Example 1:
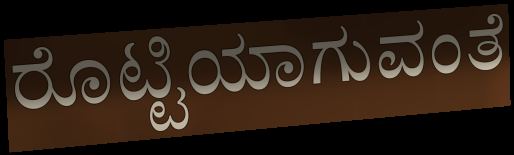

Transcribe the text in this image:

ರೊಟ್ಟಿಯಾಗುವಂತೆ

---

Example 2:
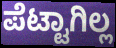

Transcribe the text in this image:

ಪೆಟ್ಟಾಗಿಲ್ಲ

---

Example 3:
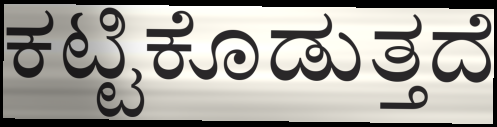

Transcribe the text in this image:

ಕಟ್ಟಿಕೊಡುತ್ತದೆ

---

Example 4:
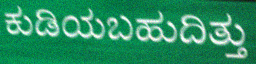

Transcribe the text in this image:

ಕುಡಿಯಬಹುದಿತ್ತು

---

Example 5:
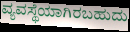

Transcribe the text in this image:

ವ್ಯವಸ್ಥೆಯಾಗಿರಬಹುದು